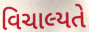
વિચાલ્યતે